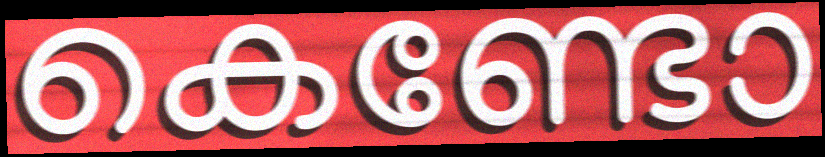
കെണ്ടോ